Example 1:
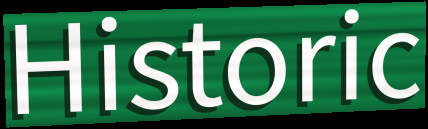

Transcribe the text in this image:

Historic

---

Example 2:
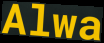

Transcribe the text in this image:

Alwa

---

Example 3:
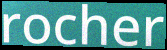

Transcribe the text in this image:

rocher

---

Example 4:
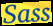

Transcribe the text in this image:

Sass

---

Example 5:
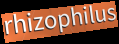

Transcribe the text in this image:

rhizophilus